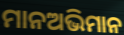
ମାନଅଭିମାନ